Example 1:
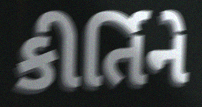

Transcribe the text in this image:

કીર્તિને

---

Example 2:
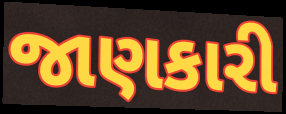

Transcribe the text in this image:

જાણકારી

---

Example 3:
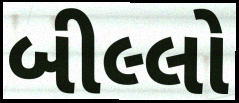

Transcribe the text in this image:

બીલ્લો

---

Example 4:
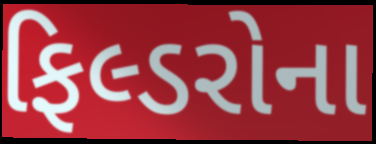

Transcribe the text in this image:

ફિલ્ડરોના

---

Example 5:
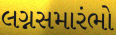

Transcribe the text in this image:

લગ્નસમારંભો